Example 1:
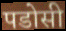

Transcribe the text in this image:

पडोसी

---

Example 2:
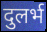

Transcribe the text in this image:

दुलर्भ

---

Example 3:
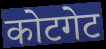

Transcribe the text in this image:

कोटगेट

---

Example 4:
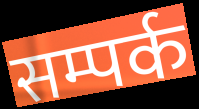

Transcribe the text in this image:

सम्पर्क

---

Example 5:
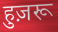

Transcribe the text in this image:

हुज़रू